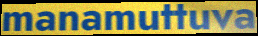
manamuttuva